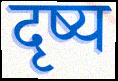
दृष्य